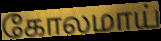
கோலமாய்